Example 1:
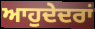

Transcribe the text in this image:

ਆਹੁਦੇਦਰਾਂ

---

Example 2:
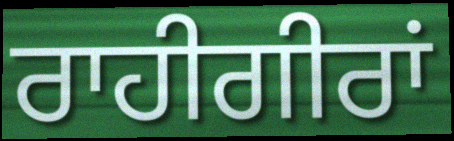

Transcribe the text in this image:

ਰਾਹੀਗੀਰਾਂ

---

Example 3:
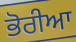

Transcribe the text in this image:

ਭੋਰੀਆ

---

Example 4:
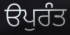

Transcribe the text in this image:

ੳਪੁਰੰਤ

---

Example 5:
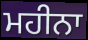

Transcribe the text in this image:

ਮਹੀਨਾ